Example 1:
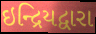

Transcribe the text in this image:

ઇન્દ્રિયદ્વારા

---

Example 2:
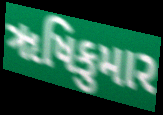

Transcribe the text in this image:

ૠષિકુમાર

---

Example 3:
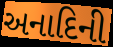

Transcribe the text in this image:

અનાદિની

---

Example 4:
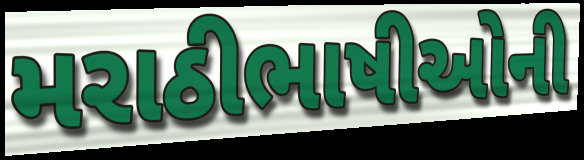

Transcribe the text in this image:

મરાઠીભાષીઓની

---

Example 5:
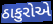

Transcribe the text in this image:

ઠાકુરોએ